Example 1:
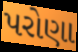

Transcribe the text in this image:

પરોણા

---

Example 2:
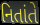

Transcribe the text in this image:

નિતાંતે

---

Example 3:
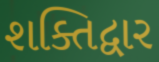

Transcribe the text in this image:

શક્તિદ્વાર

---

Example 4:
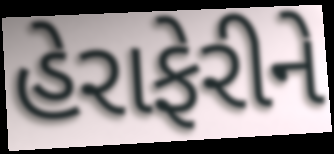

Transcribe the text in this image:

હેરાફેરીને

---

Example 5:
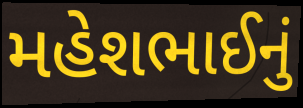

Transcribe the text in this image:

મહેશભાઈનું